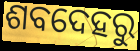
ଶବଦେହରୁ